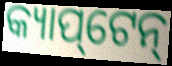
କ୍ୟାପ୍‌ଟେନ୍